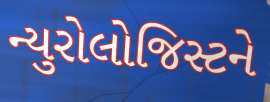
ન્યુરોલોજિસ્ટને